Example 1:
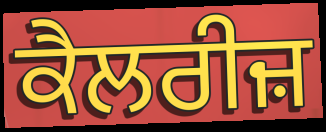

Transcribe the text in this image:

ਕੈਲਰੀਜ਼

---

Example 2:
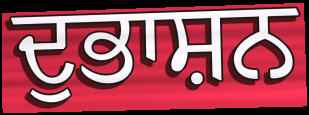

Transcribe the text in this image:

ਦੁਭਾਸ਼ਨ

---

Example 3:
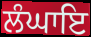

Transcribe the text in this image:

ਲੰਘਾਇ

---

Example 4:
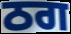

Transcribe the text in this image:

ਠਗ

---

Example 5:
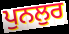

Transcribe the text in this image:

ਪੁਨਲੁਰ